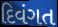
દિવંગત